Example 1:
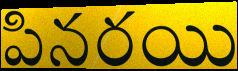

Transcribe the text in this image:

పినరయి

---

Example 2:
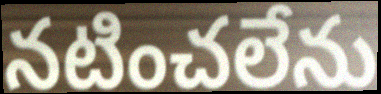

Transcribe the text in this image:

నటించలేను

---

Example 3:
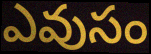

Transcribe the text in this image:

ఎవుసం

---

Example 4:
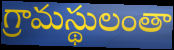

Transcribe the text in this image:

గ్రామస్థులంతా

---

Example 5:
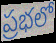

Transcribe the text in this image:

ప్రభలో